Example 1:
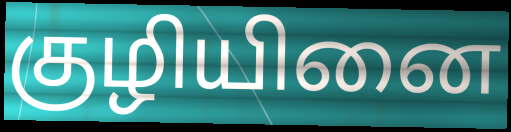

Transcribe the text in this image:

குழியினை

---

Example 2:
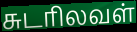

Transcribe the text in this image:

சுடரிலவள்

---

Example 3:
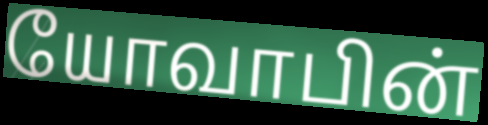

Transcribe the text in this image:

யோவாபின்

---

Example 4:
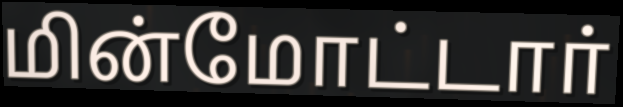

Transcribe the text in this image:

மின்மோட்டார்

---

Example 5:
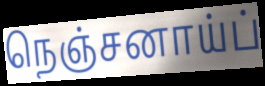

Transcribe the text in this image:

நெஞ்சனாய்ப்